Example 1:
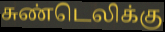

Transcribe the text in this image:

சுண்டெலிக்கு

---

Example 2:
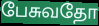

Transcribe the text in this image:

பேசுவதோ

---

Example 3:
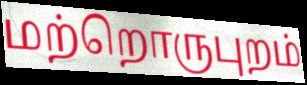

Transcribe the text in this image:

மற்றொருபுறம்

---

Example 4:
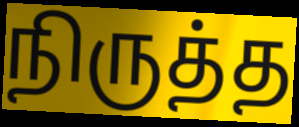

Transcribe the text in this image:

நிருத்த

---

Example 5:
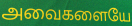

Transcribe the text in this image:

அவைகளையே